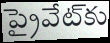
ప్రైవేట్‌కు